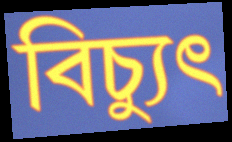
বিচ্যুৎ